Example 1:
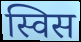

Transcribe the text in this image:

स्विस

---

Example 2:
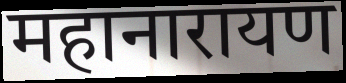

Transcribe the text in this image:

महानारायण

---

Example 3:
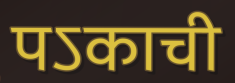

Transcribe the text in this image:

पऽकाची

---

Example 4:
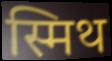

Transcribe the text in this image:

स्मिथ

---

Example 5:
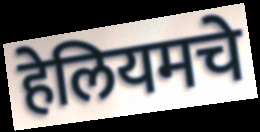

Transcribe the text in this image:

हेलियमचे